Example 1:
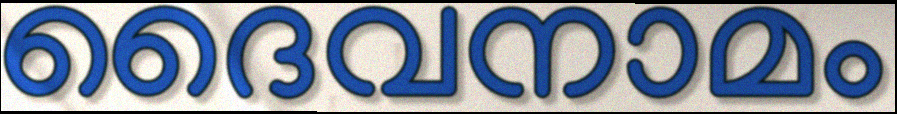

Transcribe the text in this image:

ദൈവനാമം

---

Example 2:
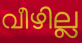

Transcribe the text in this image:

വീഴില്ല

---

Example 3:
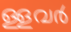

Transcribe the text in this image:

ള്ളവർ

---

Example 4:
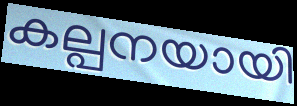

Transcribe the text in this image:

കല്പനയായി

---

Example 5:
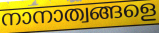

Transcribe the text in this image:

നാനാത്വങ്ങളെ